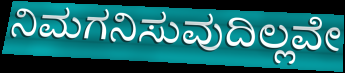
ನಿಮಗನಿಸುವುದಿಲ್ಲವೇ